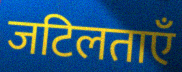
जटिलताएँ